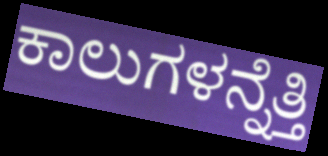
ಕಾಲುಗಳನ್ನೆತ್ತಿ